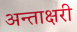
अन्ताक्षरी